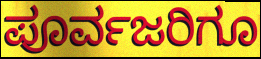
ಪೂರ್ವಜರಿಗೂ